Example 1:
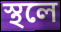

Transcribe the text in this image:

স্থলে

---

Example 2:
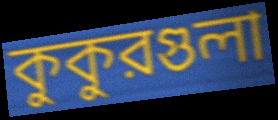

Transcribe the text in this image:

কুকুরগুলা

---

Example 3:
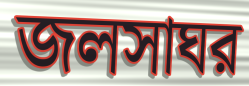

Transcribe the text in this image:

জলসাঘর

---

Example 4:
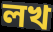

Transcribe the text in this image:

লখ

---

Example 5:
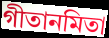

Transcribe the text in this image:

গীতানমিতা